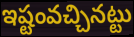
ఇష్టంవచ్చినట్టు